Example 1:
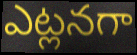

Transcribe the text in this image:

ఎట్లనగా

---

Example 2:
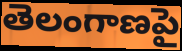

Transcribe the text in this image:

తెలంగాణపై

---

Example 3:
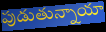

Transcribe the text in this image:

పుడుతున్నాయా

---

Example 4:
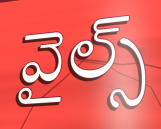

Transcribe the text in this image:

వైల్స్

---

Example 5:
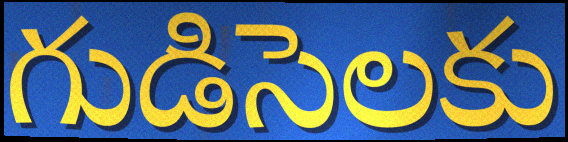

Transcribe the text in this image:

గుడిసెలకు